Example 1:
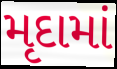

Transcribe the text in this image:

મૃદામાં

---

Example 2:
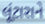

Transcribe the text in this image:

લૂંટારાને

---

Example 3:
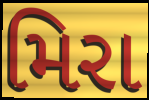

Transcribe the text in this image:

મિરા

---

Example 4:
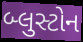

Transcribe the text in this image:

બ્લુસ્ટોન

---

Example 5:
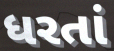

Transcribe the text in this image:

ધરતાં